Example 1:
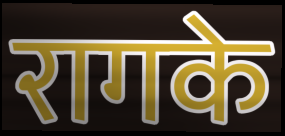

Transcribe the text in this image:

रागके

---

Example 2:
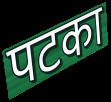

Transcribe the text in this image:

पटका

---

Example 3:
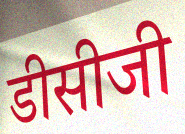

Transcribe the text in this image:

डीसीजी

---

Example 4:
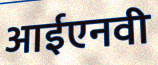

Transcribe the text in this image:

आईएनवी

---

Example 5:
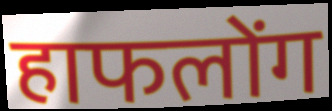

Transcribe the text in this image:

हाफलोंग